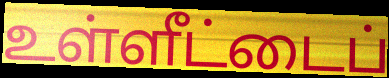
உள்ளீட்டைப்